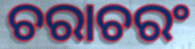
ଚରାଚରଂ